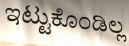
ಇಟ್ಟುಕೊಂಡಿಲ್ಲ